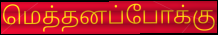
மெத்தனப்போக்கு